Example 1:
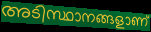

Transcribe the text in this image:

അടിസ്ഥാനങ്ങളാണ്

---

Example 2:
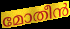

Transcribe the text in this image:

മോതീൻ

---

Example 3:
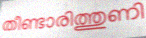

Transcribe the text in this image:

തീണ്ടാരിത്തുണി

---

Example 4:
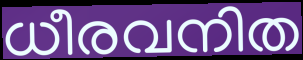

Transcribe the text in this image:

ധീരവനിത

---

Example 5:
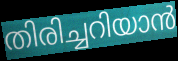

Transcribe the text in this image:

തിരിച്ചറിയാൻ